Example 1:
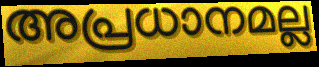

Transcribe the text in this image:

അപ്രധാനമല്ല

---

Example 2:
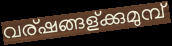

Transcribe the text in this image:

വര്ഷങ്ങള്ക്കുമുമ്പ്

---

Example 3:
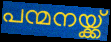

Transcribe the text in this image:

പന്മനയ്ക്ക്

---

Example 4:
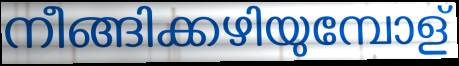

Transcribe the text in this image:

നീങ്ങിക്കഴിയുമ്പോള്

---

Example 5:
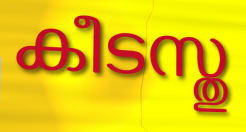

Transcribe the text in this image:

കീടസ്തു